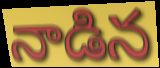
నాడిన